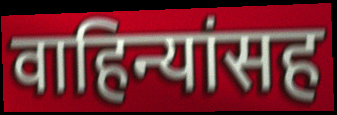
वाहिन्यांसह